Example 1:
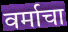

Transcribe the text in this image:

वर्माचा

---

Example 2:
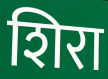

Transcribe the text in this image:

शिरा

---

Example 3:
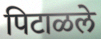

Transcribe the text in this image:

पिटाळले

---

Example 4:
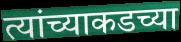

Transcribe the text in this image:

त्यांच्याकडच्या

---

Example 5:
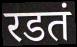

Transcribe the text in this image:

रडतं